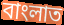
বাংলাত